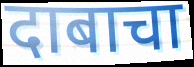
दाबाचा